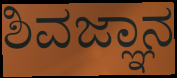
ಶಿವಜ್ಞಾನ